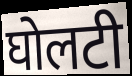
घोलटी